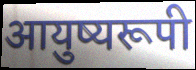
आयुष्यरूपी